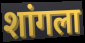
शांगला